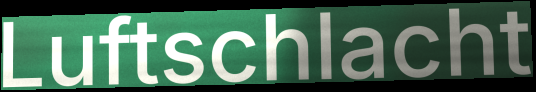
Luftschlacht